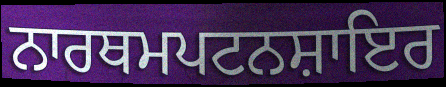
ਨਾਰਥਮਪਟਨਸ਼ਾਇਰ